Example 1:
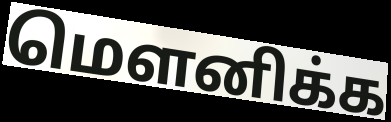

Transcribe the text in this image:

மெளனிக்க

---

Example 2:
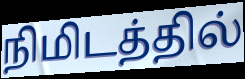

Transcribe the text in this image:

நிமிடத்தில்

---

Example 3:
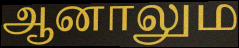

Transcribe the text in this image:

ஆனாலும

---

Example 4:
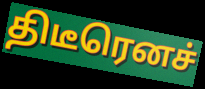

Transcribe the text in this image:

திடீரெனச்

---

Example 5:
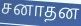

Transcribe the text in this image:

சனாதன